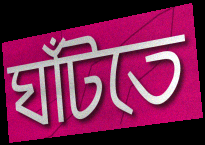
ঘাঁটতে